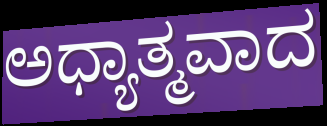
ಅಧ್ಯಾತ್ಮವಾದ